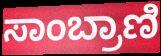
ಸಾಂಬ್ರಾಣಿ